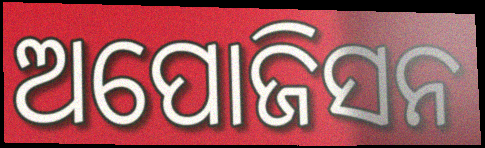
ଅପୋଜିସନ